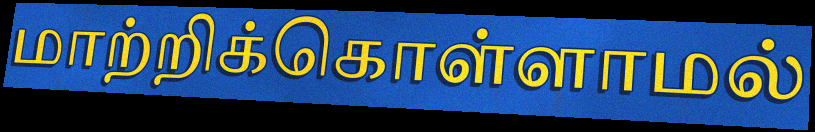
மாற்றிக்கொள்ளாமல்